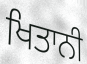
ਖਿਤਾਨੀ